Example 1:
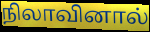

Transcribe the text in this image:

நிலாவினால்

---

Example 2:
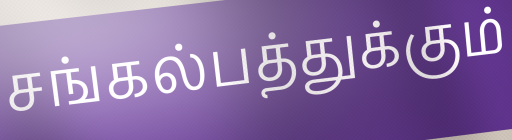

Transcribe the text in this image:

சங்கல்பத்துக்கும்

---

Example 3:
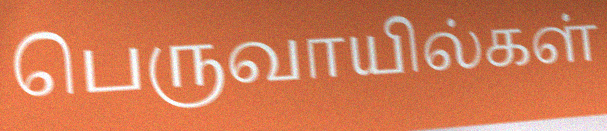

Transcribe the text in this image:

பெருவாயில்கள்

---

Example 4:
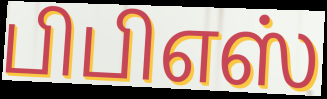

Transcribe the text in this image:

பிபிஎஸ்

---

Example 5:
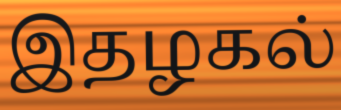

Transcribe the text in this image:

இதழகல்